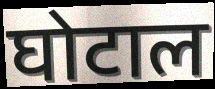
घोटाल